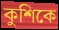
কুশিকে